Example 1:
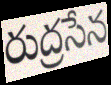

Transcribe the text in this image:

రుద్రసేన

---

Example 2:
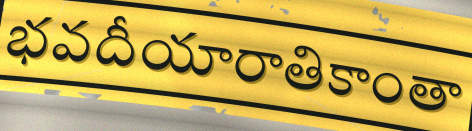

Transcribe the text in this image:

భవదీయారాతికాంతా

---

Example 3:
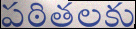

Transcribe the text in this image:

పఠితలకు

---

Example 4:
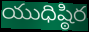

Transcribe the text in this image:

యుధిష్ఠిర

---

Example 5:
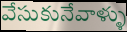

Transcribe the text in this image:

వేసుకునేవాళ్ళు